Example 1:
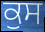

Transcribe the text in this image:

ਕੁਸ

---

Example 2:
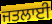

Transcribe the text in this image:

ਜਤਲਾਈ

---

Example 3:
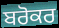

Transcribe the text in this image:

ਬਰੋਕਰ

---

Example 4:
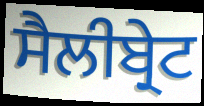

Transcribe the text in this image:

ਸੈਲੀਬ੍ਰੇਟ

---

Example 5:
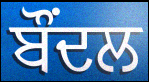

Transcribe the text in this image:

ਬੌਂਦਲ